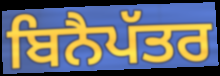
ਬਿਨੈਪੱਤਰ